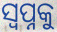
ସ୍ୱପ୍ନକୁ